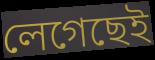
লেগেছেই